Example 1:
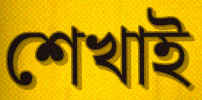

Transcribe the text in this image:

শেখাই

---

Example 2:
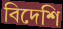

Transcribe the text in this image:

বিদেশি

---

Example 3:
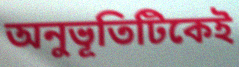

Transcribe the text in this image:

অনুভূতিটিকেই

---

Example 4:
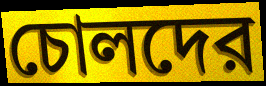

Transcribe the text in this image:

চোলদের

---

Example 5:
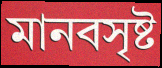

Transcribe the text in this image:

মানবসৃষ্ট